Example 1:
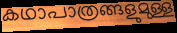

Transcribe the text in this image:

കഥാപാത്രങ്ങളുമുള്ള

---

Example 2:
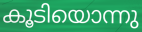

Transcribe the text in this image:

കൂടിയൊന്നു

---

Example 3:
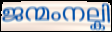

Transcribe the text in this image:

ജന്മംനല്കി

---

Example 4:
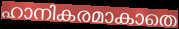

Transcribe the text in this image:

ഹാനികരമാകാതെ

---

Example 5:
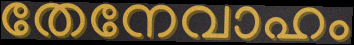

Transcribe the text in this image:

തേനേവാഹം